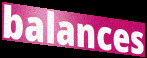
balances